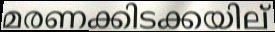
മരണക്കിടക്കയില്